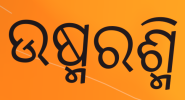
ଉଷ୍ମରଶ୍ମି